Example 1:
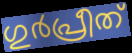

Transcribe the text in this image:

ഗുർപ്രീത്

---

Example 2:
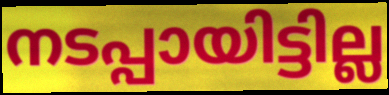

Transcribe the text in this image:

നടപ്പായിട്ടില്ല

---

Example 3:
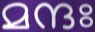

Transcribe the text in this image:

മന്ദഃ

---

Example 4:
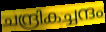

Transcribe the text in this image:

ചന്ദ്രികച്ചന്ദം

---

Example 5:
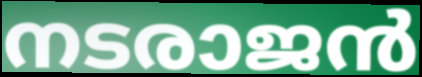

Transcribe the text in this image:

നടരാജൻ